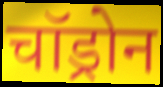
चॉड्रोन